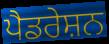
ਪੈਡਰੇਸ਼ਨ